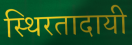
स्थिरतादायी